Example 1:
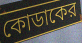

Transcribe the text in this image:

কোডাকের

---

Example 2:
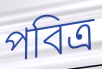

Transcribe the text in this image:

পবিত্র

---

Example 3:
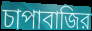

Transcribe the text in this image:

চাপাবাজির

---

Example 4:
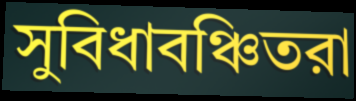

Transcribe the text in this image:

সুবিধাবঞ্চিতরা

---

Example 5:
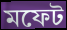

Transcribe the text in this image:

মফেট